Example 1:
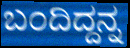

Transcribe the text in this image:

ಬಂದಿದ್ದನ್ನ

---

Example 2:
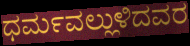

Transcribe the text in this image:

ಧರ್ಮವಲ್ಲುಳಿದವರ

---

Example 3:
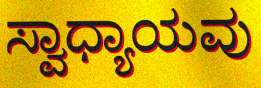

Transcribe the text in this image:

ಸ್ವಾಧ್ಯಾಯವು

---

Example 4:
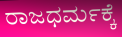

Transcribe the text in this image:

ರಾಜಧರ್ಮಕ್ಕೆ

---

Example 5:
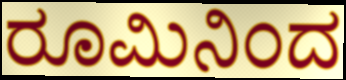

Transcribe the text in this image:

ರೂಮಿನಿಂದ